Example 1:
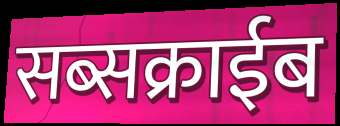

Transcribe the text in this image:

सब्सक्राईब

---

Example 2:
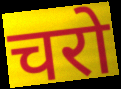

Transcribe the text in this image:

चरो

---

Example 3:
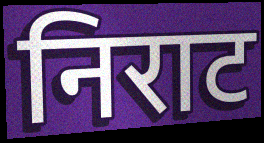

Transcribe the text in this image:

निराट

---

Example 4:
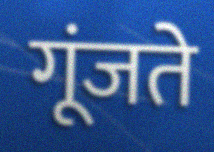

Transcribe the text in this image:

गूंजते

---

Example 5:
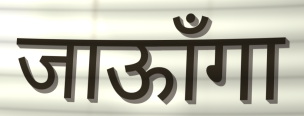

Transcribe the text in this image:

जाऊाँगा